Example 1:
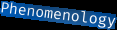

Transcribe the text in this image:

Phenomenology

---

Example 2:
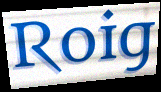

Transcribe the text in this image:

Roig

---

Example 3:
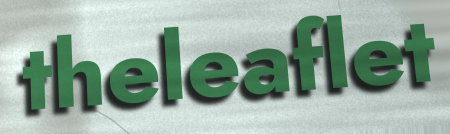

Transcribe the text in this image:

theleaflet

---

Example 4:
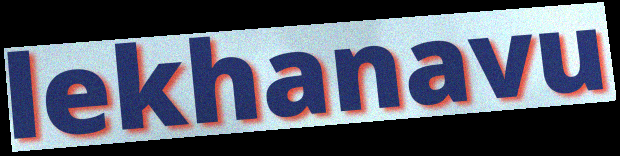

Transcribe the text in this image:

lekhanavu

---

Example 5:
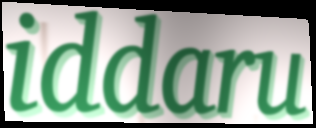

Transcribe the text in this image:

iddaru